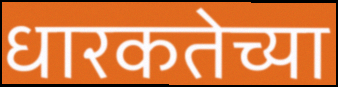
धारकतेच्या